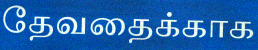
தேவதைக்காக